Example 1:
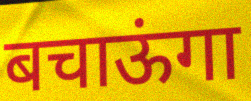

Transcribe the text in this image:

बचाऊंगा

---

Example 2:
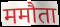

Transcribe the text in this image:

ममौता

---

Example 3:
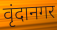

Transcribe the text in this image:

वृंदानगर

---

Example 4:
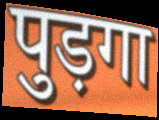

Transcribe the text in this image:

पुड़गा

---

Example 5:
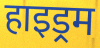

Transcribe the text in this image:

हाइड्रम